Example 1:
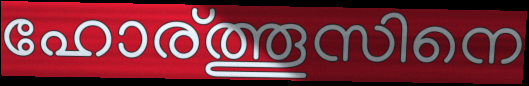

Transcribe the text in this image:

ഹോര്ത്തൂസിനെ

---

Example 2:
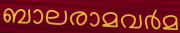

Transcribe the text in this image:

ബാലരാമവർമ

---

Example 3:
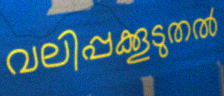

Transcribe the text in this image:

വലിപ്പക്കൂടുതൽ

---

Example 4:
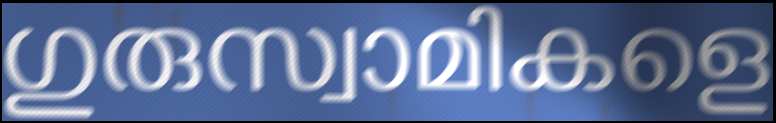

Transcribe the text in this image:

ഗുരുസ്വാമികളെ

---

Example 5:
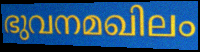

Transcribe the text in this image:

ഭുവനമഖിലം